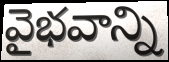
వైభవాన్ని